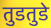
तुडतुडे